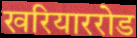
खरियाररोड